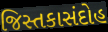
જિસ્તકાસંદોહ